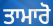
ਤਾਮਾਰੋ